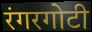
रंगरगोटी